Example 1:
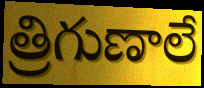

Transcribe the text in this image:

త్రిగుణాలే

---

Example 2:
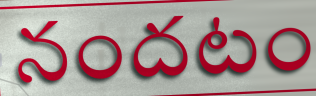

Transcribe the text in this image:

నందటం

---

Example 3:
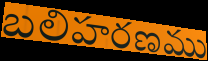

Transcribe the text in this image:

బలిహరణము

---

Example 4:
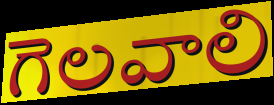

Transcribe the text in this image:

గెలవాలి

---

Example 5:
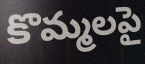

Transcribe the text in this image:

కొమ్మలపై